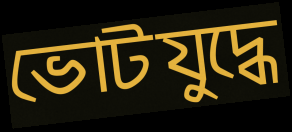
ভোটযুদ্ধে